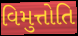
વિમુત્તોતિ